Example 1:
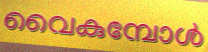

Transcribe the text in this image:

വൈകുമ്പോൾ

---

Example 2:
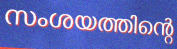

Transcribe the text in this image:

സംശയത്തിന്റെ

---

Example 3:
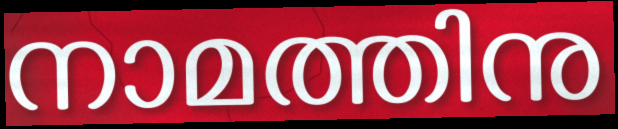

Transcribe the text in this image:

നാമത്തിനു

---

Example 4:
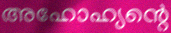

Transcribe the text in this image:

അഹോഹ്യന്റെ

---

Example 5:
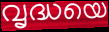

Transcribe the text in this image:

വൃദ്ധയെ